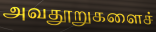
அவதூறுகளைச்